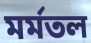
মর্মতল